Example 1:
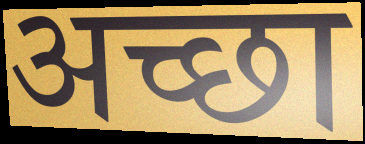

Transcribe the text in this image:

अच्छा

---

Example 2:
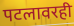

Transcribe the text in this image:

पटलावरही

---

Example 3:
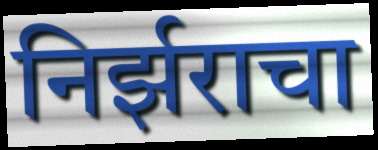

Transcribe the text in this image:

निर्झराचा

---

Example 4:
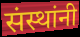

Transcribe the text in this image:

संस्थांनी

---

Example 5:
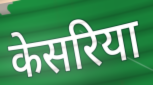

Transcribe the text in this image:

केसरिया